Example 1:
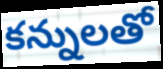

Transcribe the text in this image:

కన్నులతో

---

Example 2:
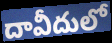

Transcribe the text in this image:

దావీదులో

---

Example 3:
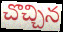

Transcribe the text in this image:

చొచ్చిన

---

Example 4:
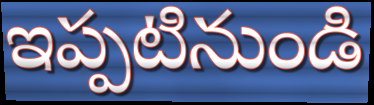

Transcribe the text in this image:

ఇప్పటినుండి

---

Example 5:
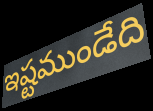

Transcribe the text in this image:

ఇష్టముండేది